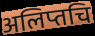
अलिप्तचि